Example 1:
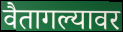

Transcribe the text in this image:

वैतागल्यावर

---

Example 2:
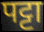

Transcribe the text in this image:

पट्टा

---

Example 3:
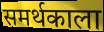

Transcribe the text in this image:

समर्थकाला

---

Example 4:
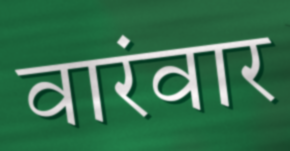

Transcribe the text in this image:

वारंवार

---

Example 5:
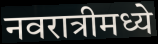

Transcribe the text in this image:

नवरात्रीमध्ये